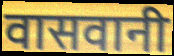
वासवानी